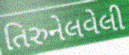
તિરુનેલવેલી